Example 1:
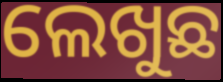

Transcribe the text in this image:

ଲେଖୁଛ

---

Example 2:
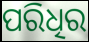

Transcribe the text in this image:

ପରିଧିର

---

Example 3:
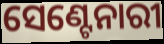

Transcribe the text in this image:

ସେଣ୍ଟେନାରୀ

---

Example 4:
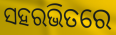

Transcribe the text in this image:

ସହରଭିତରେ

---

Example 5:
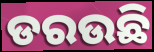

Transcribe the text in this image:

ଡରଉଛି